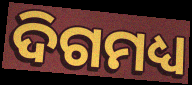
ଦିଗମଧ୍ୟ